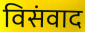
विसंवाद